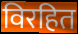
विरहित